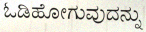
ಓಡಿಹೋಗುವುದನ್ನು